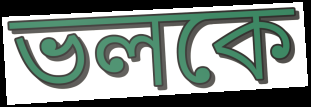
ভলকে